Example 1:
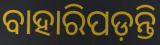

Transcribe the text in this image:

ବାହାରିପଡ଼ନ୍ତି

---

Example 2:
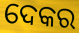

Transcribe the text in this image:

ଦେକର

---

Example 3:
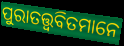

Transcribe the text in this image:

ପୁରାତତ୍ତ୍ୱବିତମାନେ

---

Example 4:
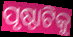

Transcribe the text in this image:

ପୃଷ୍ଠାଟିକୁ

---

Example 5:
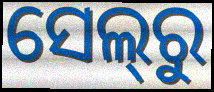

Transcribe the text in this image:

ସେଲ୍‌ରୁ